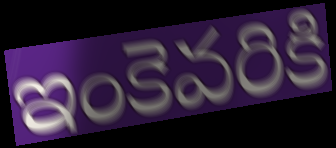
ఇంకెవరికి